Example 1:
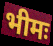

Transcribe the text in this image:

भीमः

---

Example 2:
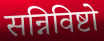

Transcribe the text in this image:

सन्निविष्टो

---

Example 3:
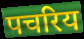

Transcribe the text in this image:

पचरिय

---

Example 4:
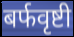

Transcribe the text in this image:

बर्फवृष्टी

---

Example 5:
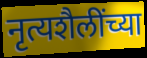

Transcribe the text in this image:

नृत्यशैलींच्या